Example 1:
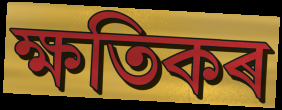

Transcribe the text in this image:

ক্ষতিকৰ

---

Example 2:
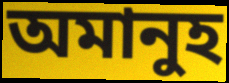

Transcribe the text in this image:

অমানুহ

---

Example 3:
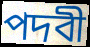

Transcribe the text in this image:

পদবী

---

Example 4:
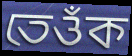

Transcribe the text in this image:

তেওঁক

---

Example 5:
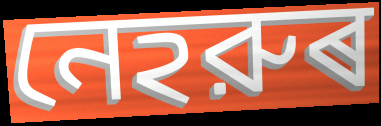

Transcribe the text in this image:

নেহৰুৰ